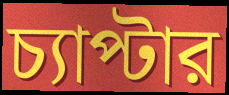
চ্যাপ্টার